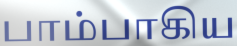
பாம்பாகிய